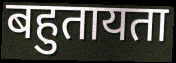
बहुतायता